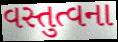
વસ્તુત્વના